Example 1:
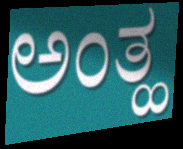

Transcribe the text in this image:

ಅಂತ್ಹ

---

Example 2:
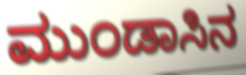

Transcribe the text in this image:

ಮುಂಡಾಸಿನ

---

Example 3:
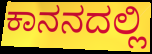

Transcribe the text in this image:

ಕಾನನದಲ್ಲಿ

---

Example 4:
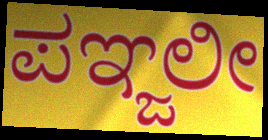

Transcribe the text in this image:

ಪಞ್ಜಲೀ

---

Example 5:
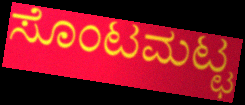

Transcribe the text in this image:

ಸೊಂಟಮಟ್ಟ